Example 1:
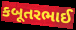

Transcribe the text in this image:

કબૂતરભાઈ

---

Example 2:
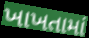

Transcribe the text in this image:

ખાખતામાં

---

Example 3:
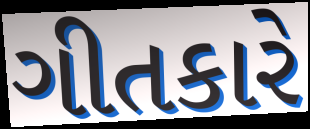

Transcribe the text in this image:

ગીતકારે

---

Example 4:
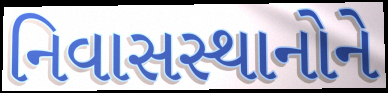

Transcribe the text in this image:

નિવાસસ્થાનોને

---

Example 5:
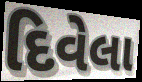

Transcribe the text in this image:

દિવેલા